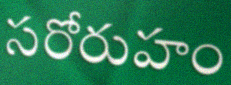
సరోరుహం